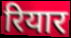
रियार